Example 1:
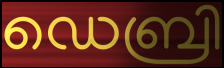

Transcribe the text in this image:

ഡെബ്രി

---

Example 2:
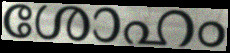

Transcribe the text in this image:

ശോഹം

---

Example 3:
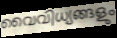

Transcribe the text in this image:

വൈവിധ്യങ്ങളും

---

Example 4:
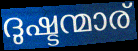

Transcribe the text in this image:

ദുഷ്ടന്മാര്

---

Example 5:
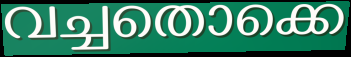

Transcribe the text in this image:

വച്ചതൊക്കെ